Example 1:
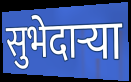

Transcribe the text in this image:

सुभेदाऱ्या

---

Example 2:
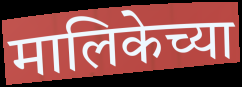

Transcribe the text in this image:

मालिकेच्या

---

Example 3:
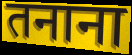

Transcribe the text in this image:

तनाना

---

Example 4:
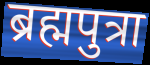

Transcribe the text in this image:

ब्रह्मपुत्रा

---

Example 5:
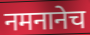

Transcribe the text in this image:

नमनानेच